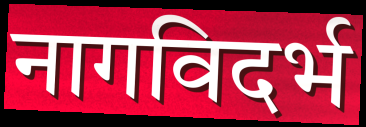
नागविदर्भ